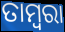
ତାମ୍ବରା